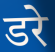
डरे